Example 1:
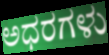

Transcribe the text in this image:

ಅಧರಗಳು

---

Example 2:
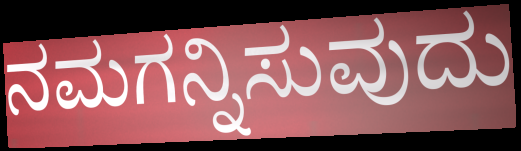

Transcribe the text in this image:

ನಮಗನ್ನಿಸುವುದು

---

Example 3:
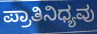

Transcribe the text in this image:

ಪ್ರಾತಿನಿಧ್ಯವು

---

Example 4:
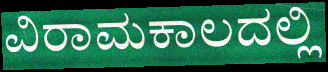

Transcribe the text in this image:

ವಿರಾಮಕಾಲದಲ್ಲಿ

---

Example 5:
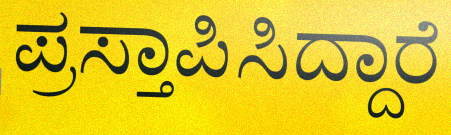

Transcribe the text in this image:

ಪ್ರಸ್ತಾಪಿಸಿದ್ದಾರೆ